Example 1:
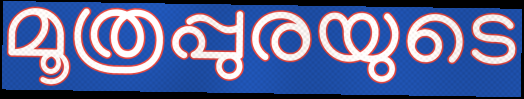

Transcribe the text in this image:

മൂത്രപ്പുരയുടെ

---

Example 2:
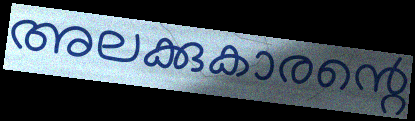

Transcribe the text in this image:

അലക്കുകാരന്റെ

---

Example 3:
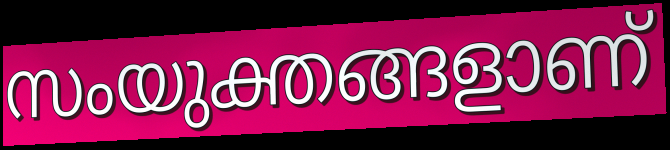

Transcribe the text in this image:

സംയുക്തങ്ങളാണ്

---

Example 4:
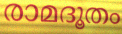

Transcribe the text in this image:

രാമദൂതം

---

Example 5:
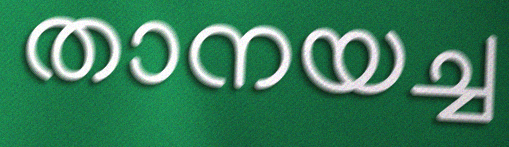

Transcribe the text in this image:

താനയച്ച